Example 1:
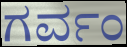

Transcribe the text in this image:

ಗರ್ವಂ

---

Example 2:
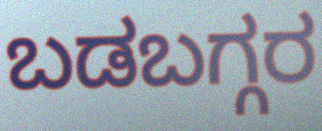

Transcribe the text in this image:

ಬಡಬಗ್ಗರ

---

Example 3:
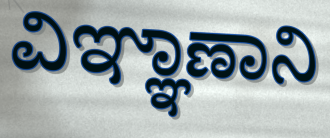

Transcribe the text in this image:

ವಿಞ್ಞಾಣಾನಿ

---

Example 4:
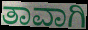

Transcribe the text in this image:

ತಾವಾಗಿ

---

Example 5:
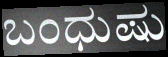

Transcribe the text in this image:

ಬಂಧುಷು